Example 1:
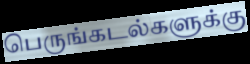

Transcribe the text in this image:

பெருங்கடல்களுக்கு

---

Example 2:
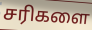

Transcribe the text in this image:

சரிகளை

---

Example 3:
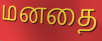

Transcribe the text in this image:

மனதை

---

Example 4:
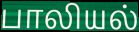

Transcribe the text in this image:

பாலியல்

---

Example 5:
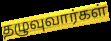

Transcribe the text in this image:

தழுவுவார்கள்